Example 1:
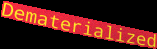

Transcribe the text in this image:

Dematerialized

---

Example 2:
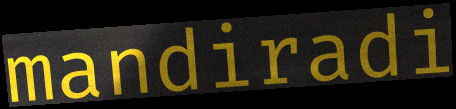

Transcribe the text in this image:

mandiradi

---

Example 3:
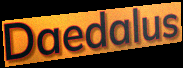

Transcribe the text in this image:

Daedalus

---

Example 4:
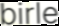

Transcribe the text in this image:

birle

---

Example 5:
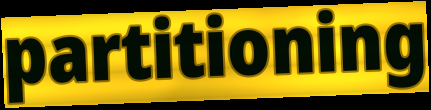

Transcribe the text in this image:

partitioning